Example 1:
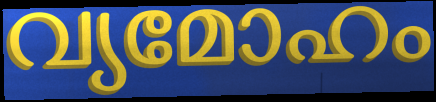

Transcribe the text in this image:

വ്യമോഹം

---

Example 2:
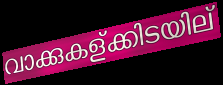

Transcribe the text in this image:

വാക്കുകള്ക്കിടയില്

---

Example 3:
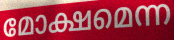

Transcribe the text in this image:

മോക്ഷമെന്ന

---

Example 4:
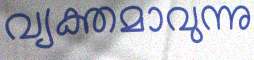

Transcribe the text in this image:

വ്യക്തമാവുന്നു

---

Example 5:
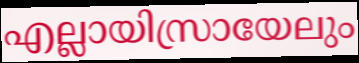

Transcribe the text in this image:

എല്ലായിസ്രായേലും